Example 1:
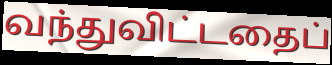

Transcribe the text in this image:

வந்துவிட்டதைப்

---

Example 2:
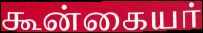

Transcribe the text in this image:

கூன்கையர்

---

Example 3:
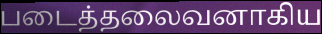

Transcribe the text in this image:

படைத்தலைவனாகிய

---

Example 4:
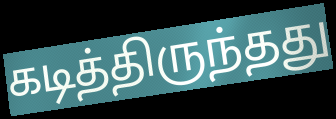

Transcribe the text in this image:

கடித்திருந்தது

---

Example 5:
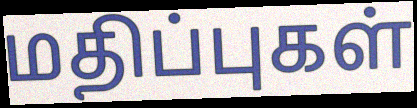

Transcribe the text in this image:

மதிப்புகள்